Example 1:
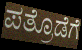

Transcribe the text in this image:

ಪತ್ರೊಡೆಗೆ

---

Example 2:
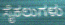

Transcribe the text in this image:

ಸೈಕಲುಗಳು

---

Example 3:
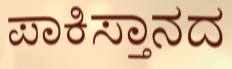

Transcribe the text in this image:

ಪಾಕಿಸ್ತಾನದ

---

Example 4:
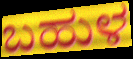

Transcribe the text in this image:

ಬಹುಳ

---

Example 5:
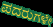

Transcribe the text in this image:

ಪದರುಗಳೇ